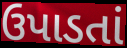
ઉપાડતાં